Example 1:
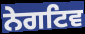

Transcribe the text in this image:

ਨੇਗਟਿਵ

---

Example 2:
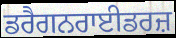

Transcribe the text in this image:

ਡਰੈਗਨਰਾਈਡਰਜ਼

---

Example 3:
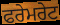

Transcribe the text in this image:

ਫਰੇਮਰੇਟ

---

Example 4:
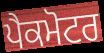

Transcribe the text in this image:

ਪੈਕਮੋਟਰ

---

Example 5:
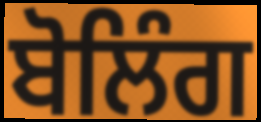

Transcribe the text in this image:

ਬੋਲਿੰਗ